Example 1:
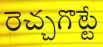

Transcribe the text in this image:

రెచ్చగొట్టే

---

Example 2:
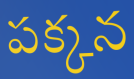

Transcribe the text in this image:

పక్కన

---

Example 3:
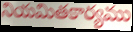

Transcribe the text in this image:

నియమితకార్యము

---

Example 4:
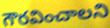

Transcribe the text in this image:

గౌరవించాలని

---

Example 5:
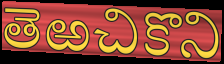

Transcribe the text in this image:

తెఱచికొని